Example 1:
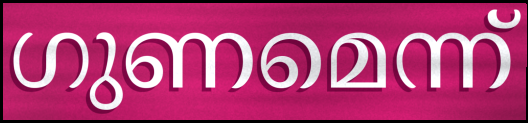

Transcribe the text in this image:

ഗുണമെന്ന്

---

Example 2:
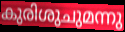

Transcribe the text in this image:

കുരിശുചുമന്നു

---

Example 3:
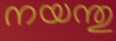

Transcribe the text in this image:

നയന്തു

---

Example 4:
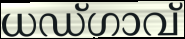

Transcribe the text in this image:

ധഡ്ഗാവ്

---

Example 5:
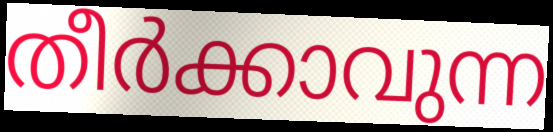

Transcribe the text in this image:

തീർക്കാവുന്ന